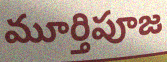
మూర్తిపూజ